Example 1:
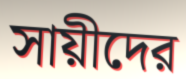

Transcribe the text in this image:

সায়ীদের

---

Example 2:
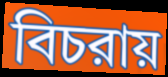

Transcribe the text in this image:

বিচরায়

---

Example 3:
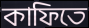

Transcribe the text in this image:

কাফিতে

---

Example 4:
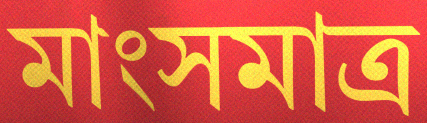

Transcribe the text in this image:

মাংসমাত্র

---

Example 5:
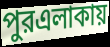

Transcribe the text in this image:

পুরএলাকায়